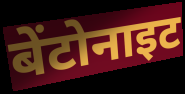
बेंटोनाइट